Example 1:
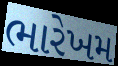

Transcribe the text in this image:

ભારેખમ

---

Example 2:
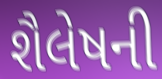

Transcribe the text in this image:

શૈલેષની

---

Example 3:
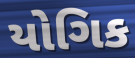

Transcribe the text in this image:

યોગિક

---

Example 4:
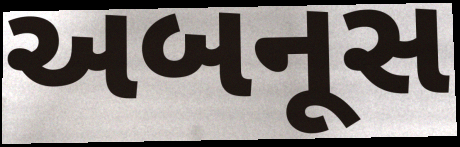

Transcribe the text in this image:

અબનૂસ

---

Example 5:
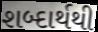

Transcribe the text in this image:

શબ્દાર્થથી